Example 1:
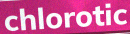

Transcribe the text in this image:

chlorotic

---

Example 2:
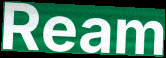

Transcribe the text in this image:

Ream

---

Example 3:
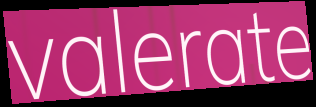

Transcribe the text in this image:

valerate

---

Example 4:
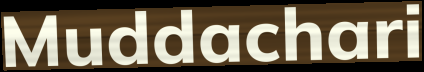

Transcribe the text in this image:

Muddachari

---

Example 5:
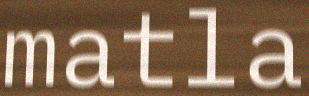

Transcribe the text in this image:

matla